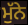
ਮੁੱਨੇ